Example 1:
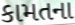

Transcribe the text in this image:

કામતના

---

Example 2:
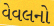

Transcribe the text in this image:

વેવલનો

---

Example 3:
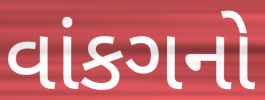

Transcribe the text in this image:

વાંકગનો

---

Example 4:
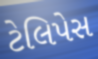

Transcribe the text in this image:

ટેલિપેસ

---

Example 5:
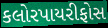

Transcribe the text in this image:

કલોરપાયરીફોસ